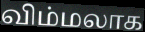
விம்மலாக